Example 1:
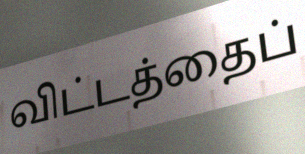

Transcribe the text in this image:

விட்டத்தைப்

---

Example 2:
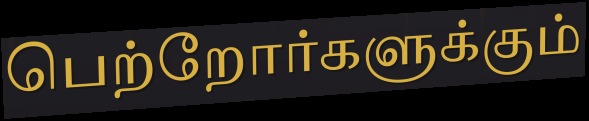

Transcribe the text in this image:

பெற்றோர்களுக்கும்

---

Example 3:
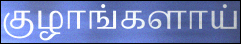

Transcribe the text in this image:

குழாங்களாய்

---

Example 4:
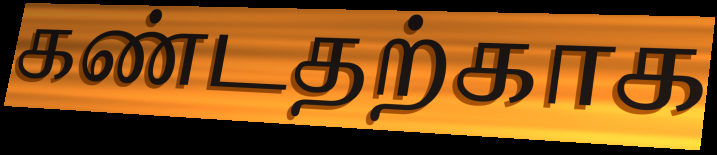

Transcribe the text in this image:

கண்டதற்காக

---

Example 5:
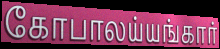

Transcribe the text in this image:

கோபாலய்யங்கார்